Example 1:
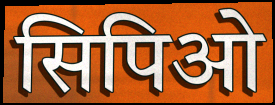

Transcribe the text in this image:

सिपिओ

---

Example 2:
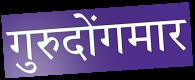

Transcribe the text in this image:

गुरुदोंगमार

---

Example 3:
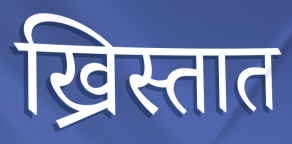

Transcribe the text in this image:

ख्रिस्तात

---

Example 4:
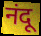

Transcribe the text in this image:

नंदू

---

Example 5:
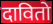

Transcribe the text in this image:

दावितो